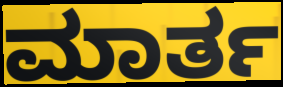
ಮಾರ್ತ